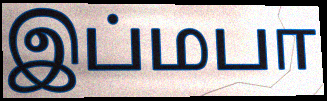
இப்மபா